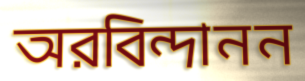
অরবিন্দানন